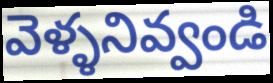
వెళ్ళనివ్వండి